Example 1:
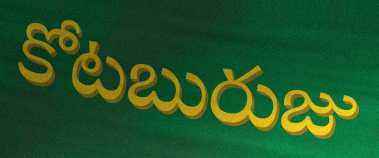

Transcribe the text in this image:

కోటబురుజు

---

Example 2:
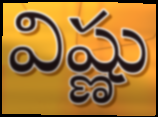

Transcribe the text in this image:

విష్ణు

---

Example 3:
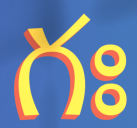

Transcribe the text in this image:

గః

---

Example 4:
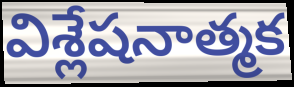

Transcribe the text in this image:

విశ్లేషనాత్మక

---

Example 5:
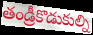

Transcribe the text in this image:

తండ్రీకొడుకుల్ని